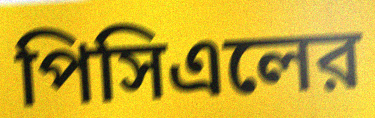
পিসিএলের